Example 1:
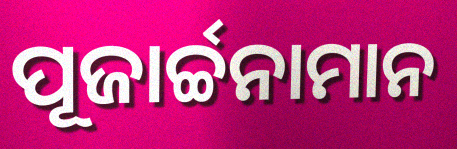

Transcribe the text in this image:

ପୂଜାର୍ଚ୍ଚନାମାନ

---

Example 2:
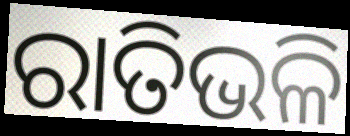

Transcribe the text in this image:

ରାତିଭଳି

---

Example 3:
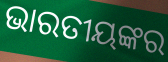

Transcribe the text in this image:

ଭାରତୀୟଙ୍କର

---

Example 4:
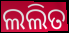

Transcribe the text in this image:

ଲଲିତ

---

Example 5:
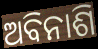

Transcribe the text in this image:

ଅବିନାଶି